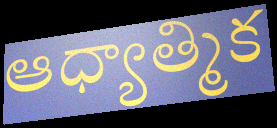
ఆధ్యాత్మిక